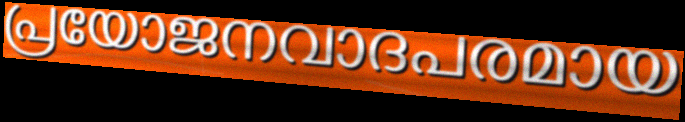
പ്രയോജനവാദപരമായ